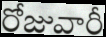
రోజువారీ